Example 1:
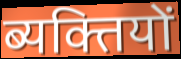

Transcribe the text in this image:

ब्यक्तियों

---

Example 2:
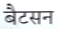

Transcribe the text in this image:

बैटसन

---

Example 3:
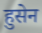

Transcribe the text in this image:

हुसेन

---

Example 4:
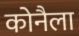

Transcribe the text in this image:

कोनैला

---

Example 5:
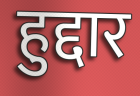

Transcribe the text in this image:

हुद्दार